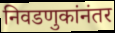
निवडणुकांनंतर